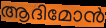
ആദിമോൻ